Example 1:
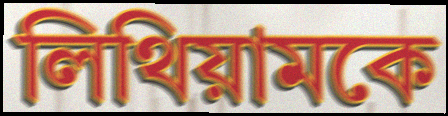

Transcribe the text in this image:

লিথিয়ামকে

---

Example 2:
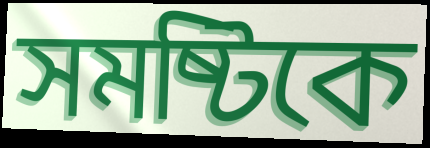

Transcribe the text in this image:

সমষ্টিকে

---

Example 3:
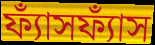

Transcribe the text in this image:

ফ্যাঁসফ্যাঁস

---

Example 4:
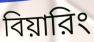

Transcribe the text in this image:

বিয়ারিং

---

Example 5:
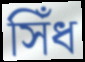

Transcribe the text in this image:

সিঁধ